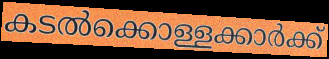
കടൽക്കൊള്ളക്കാർക്ക്